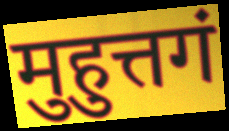
मुहुत्तगं